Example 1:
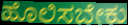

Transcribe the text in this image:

ಹೊಲಿಸಬೇಕು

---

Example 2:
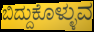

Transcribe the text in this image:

ಬಿದ್ದುಕೊಳ್ಳುವ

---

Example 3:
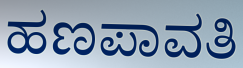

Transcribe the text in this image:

ಹಣಪಾವತಿ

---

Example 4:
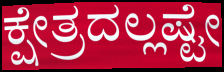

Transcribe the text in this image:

ಕ್ಷೇತ್ರದಲ್ಲಷ್ಟೇ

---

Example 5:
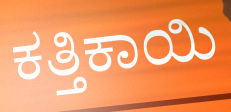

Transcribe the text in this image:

ಕತ್ತಿಕಾಯಿ